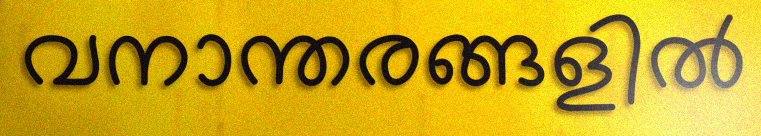
വനാന്തരങ്ങളിൽ